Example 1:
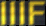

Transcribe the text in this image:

IIIF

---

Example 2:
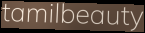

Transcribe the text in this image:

tamilbeauty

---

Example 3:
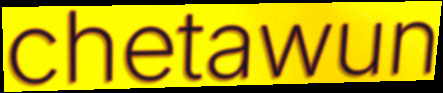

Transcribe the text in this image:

chetawun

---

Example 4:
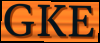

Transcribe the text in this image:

GKE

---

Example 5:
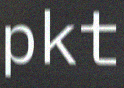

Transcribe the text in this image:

pkt